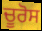
ਚੂਰੋਸ